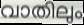
വാതിലും